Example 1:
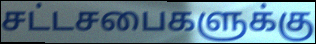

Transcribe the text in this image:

சட்டசபைகளுக்கு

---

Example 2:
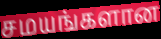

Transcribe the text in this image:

சமயங்களான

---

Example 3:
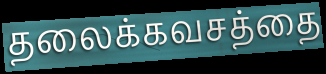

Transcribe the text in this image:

தலைக்கவசத்தை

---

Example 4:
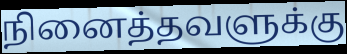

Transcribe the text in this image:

நினைத்தவளுக்கு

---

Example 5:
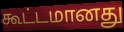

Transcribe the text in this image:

கூட்டமானது